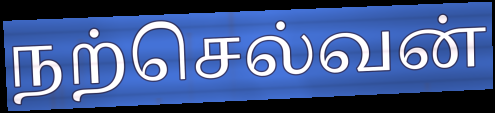
நற்செல்வன்